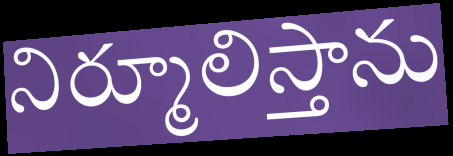
నిర్మూలిస్తాను